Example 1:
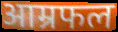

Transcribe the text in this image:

आम्रफल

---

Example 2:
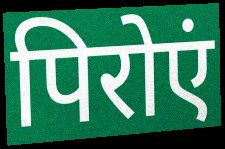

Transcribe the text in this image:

पिरोएं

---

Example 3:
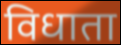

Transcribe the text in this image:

विधाता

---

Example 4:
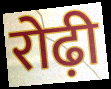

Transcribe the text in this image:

रोढ़ी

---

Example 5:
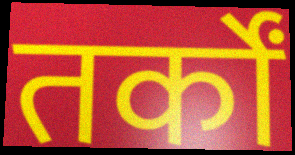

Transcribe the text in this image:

तर्कों